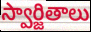
స్వార్జితాలు